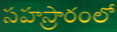
సహస్రారంలో